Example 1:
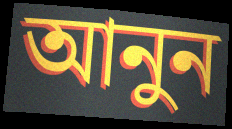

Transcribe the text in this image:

আনুন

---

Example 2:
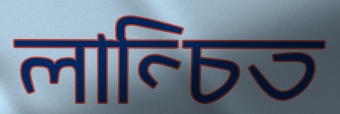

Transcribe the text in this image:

লান্চিত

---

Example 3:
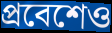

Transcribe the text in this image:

প্রবেশেও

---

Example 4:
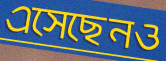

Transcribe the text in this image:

এসেছেনও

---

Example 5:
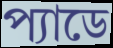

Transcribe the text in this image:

প্যাডে